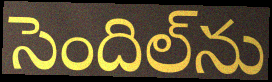
సెందిల్‌ను